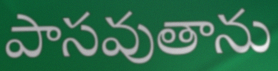
పాసవుతాను